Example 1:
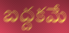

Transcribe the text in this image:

బద్దకమే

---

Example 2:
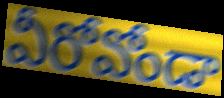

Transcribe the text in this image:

వీరోవోండా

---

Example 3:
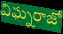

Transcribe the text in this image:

విఘ్నరాజో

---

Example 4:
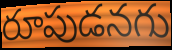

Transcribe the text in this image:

రూపుడనగు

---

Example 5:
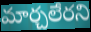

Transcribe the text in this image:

మార్చలేరని